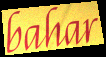
bahar